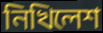
নিখিলেশ